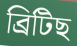
ব্ৰিটিছ